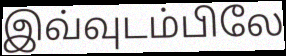
இவ்வுடம்பிலே